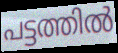
പട്ടത്തിൽ